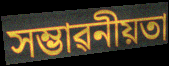
সম্ভাৱনীয়তা